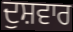
ਦੁਸ਼ਵਾਰ